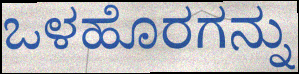
ಒಳಹೊರಗನ್ನು